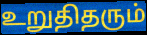
உறுதிதரும்